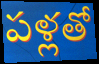
పళ్లతో